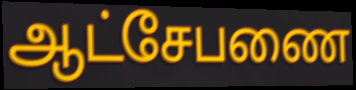
ஆட்சேபணை